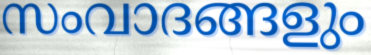
സംവാദങ്ങളും